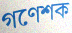
গণেশক